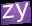
zy